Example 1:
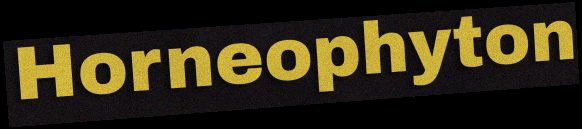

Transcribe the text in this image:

Horneophyton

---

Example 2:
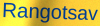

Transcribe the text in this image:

Rangotsav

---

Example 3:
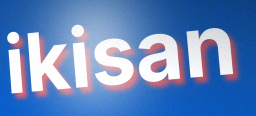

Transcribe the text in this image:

ikisan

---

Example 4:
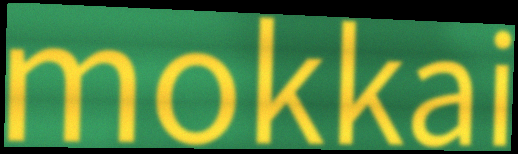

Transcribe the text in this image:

mokkai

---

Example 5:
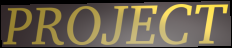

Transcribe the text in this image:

PROJECT